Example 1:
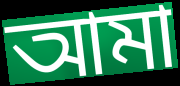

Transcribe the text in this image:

আমা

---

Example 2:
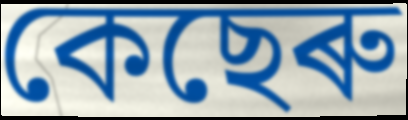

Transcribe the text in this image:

কেছেৰু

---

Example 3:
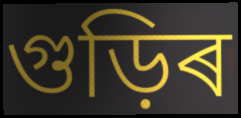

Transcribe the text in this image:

গুড়িৰ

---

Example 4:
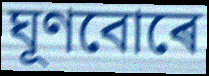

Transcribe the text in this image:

ঘূণবোৰে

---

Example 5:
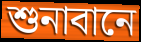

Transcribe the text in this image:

শুনাবানে